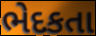
ભેદકતા